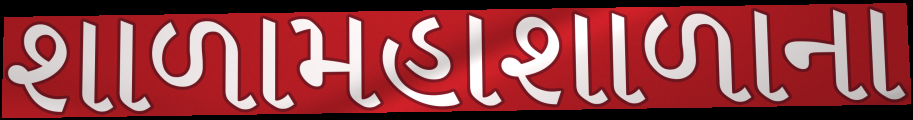
શાળામહાશાળાના